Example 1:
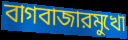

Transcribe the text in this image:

বাগবাজারমুখো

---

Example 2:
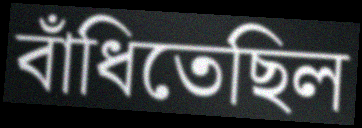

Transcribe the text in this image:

বাঁধিতেছিল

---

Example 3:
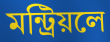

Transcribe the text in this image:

মন্ট্রিয়লে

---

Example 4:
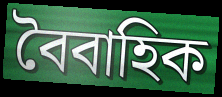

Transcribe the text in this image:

বৈবাহিক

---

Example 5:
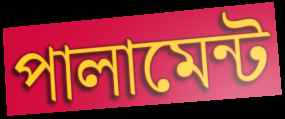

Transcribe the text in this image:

পালামেন্ট